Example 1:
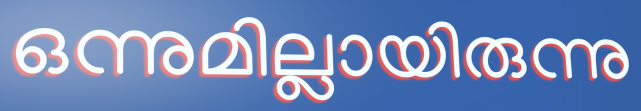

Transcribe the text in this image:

ഒന്നുമില്ലായിരുന്നു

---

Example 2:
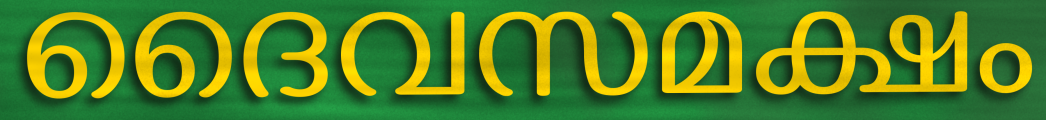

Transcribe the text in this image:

ദൈവസമക്ഷം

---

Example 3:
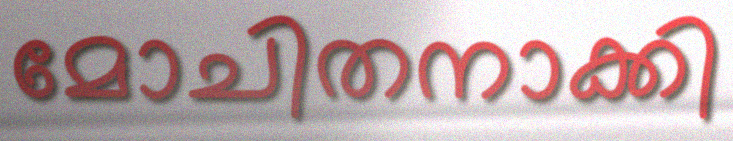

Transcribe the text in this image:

മോചിതനാക്കി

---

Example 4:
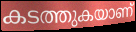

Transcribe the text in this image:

കടത്തുകയാണ്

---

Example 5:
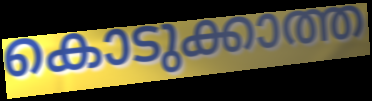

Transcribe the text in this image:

കൊടുക്കാത്ത